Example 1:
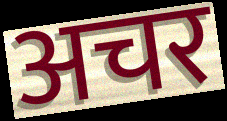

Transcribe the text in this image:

अचर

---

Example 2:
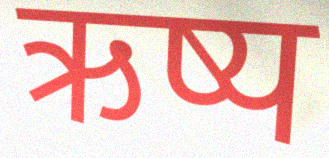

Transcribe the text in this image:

ऋष्य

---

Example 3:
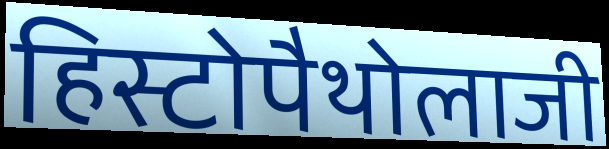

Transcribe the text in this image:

हिस्टोपैथोलाजी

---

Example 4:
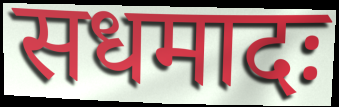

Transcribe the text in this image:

सधमादः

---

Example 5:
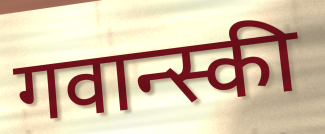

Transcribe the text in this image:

गवान्स्की